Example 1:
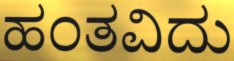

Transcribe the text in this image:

ಹಂತವಿದು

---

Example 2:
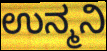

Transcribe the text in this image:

ಉನ್ಮನಿ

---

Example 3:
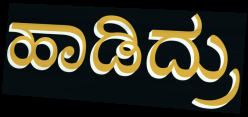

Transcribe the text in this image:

ಹಾಡಿದ್ರು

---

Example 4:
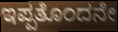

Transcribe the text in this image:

ಇಪ್ಪತೊಂದನೇ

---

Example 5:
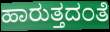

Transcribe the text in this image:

ಹಾರುತ್ತದಂತೆ